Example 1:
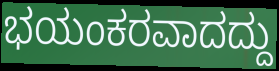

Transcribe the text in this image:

ಭಯಂಕರವಾದದ್ದು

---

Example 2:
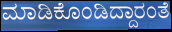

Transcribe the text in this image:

ಮಾಡಿಕೊಂಡಿದ್ದಾರಂತೆ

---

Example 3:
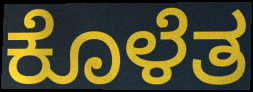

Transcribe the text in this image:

ಕೊಳೆತ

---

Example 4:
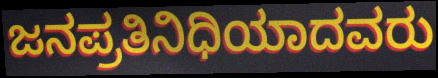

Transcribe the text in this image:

ಜನಪ್ರತಿನಿಧಿಯಾದವರು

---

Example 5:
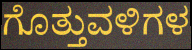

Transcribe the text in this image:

ಗೊತ್ತುವಳಿಗಳ